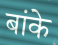
बांके